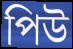
পিউ